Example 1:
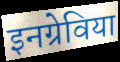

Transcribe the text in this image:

इनग्रेविया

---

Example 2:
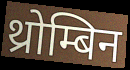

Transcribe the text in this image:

थ्रोम्बिन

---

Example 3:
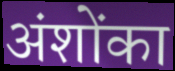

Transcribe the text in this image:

अंशोंका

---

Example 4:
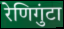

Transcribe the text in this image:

रेणिगुंटा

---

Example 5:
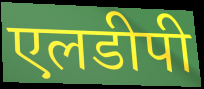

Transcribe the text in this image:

एलडीपी